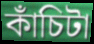
কাঁচিটা